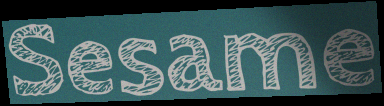
Sesame